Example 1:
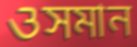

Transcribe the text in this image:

ওসমান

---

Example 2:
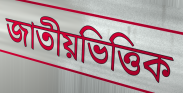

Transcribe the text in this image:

জাতীয়ভিত্তিক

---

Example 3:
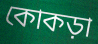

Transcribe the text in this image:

কোকড়া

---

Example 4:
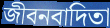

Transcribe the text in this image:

জীবনবাদিতা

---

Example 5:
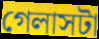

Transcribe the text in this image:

গেলাসটা